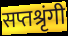
सप्तश्रृंगी